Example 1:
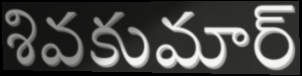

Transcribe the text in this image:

శివకుమార్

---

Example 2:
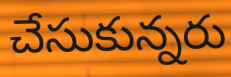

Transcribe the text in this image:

చేసుకున్నరు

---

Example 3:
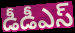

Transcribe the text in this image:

డీడీఎస్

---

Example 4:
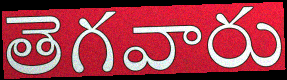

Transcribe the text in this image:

తెగవారు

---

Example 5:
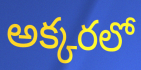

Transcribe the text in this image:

అక్కరలో